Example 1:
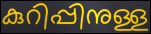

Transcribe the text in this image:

കുറിപ്പിനുള്ള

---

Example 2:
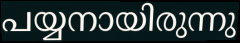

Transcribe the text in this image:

പയ്യനായിരുന്നു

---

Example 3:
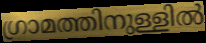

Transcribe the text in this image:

ഗ്രാമത്തിനുള്ളിൽ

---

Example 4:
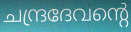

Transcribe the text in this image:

ചന്ദ്രദേവന്റെ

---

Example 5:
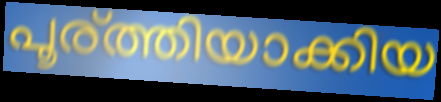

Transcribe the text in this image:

പൂര്ത്തിയാക്കിയ